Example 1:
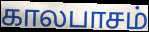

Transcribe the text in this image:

காலபாசம்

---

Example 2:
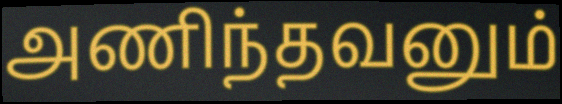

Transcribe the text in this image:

அணிந்தவனும்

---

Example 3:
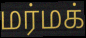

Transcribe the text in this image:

மர்மக்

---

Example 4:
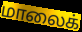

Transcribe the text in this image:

மாலைக்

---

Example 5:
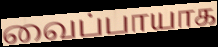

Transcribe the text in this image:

வைப்பாயாக